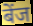
बेंज